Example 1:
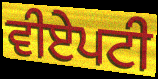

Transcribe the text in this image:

ਵੀਏਪਟੀ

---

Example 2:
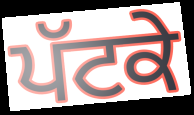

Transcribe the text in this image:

ਪੱਟਕੇ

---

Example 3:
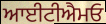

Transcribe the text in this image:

ਆਈਟੀਐਮਓ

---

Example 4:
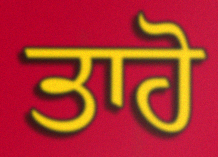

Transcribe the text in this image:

ਤਾਹੋ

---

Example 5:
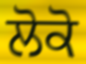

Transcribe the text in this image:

ਲੋਕੋ